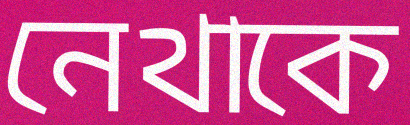
নেথাকে